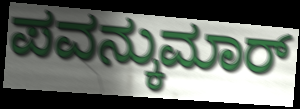
ಪವನ್ಕುಮಾರ್